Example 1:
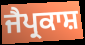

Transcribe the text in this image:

ਜੈਪ੍ਰਕਾਸ਼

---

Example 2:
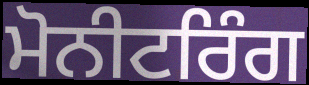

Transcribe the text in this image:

ਮੋਨੀਟਰਿੰਗ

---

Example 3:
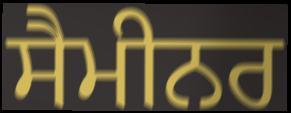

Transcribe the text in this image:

ਸੈਮੀਨਰ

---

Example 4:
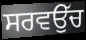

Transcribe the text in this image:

ਸਰਵਉੱਚ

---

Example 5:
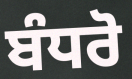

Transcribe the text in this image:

ਬੰਧਰੋ